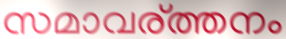
സമാവര്ത്തനം